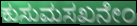
ಕುಸುಮಸಖನೇಂ